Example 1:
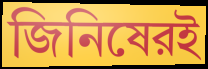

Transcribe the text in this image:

জিনিষেরই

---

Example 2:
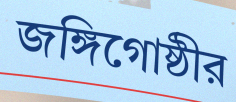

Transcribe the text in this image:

জঙ্গিগোষ্ঠীর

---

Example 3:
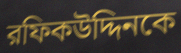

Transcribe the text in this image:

রফিকউদ্দিনকে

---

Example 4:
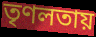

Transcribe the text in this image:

তৃণলতায়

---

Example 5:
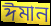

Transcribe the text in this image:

ঈমান